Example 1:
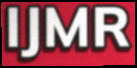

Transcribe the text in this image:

IJMR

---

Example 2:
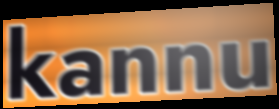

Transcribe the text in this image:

kannu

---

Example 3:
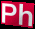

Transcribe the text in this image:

Ph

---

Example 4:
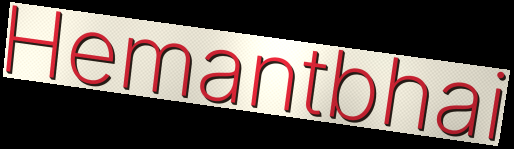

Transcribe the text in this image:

Hemantbhai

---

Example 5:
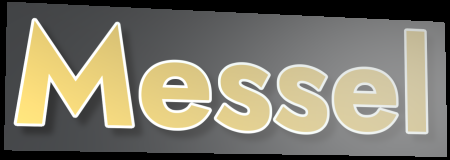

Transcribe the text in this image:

Messel